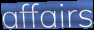
affairs